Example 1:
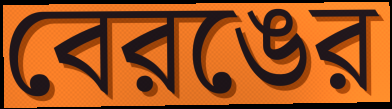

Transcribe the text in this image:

বেরঙের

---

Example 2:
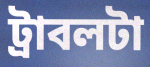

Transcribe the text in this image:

ট্রাবলটা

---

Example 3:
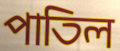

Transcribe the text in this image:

পাতিল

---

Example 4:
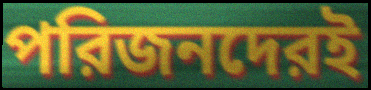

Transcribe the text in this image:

পরিজনদেরই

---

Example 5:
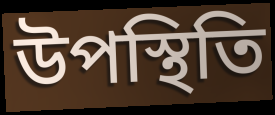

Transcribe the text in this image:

উপস্থিতি